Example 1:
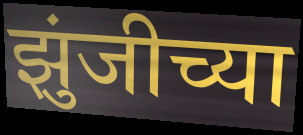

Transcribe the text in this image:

झुंजीच्या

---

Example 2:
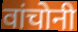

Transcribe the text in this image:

वांचोनी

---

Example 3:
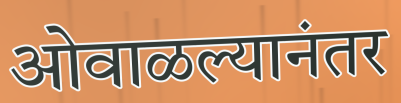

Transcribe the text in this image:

ओवाळल्यानंतर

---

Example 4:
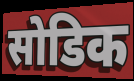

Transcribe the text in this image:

सोडिक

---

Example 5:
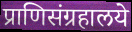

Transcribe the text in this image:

प्राणिसंग्रहालये